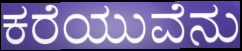
ಕರೆಯುವೆನು